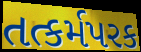
તત્કર્મપરક